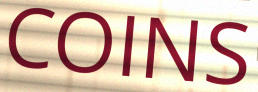
COINS